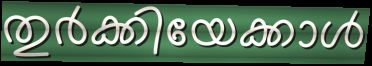
തുർക്കിയേക്കാൾ